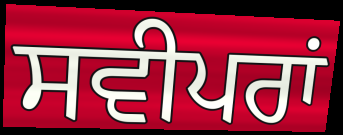
ਸਵੀਪਰਾਂ